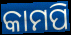
କାମପି